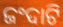
ଜଂଦାଟି